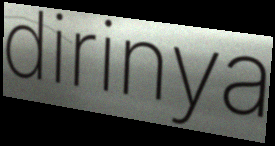
dirinya